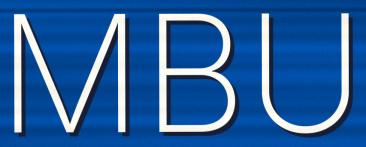
MBU